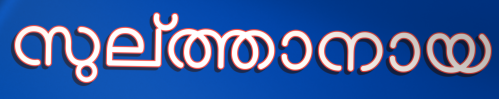
സുല്ത്താനായ